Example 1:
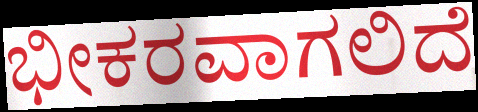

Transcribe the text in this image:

ಭೀಕರವಾಗಲಿದೆ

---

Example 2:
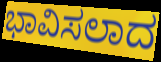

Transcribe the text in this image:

ಭಾವಿಸಲಾದ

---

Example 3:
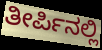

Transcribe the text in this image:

ತೀರ್ಪಿನಲ್ಲಿ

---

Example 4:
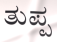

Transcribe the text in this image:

ತುಪ್ಪ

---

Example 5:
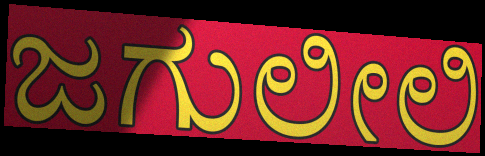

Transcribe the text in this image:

ಜಗುಲೀಲಿ